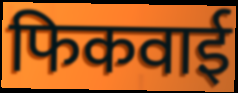
फिकवाई